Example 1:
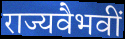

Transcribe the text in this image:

राज्यवैभवीं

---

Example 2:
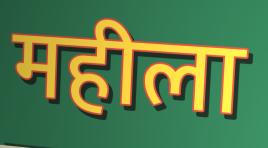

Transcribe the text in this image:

महीला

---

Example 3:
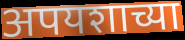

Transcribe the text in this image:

अपयशाच्या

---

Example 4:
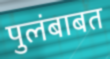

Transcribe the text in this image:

पुलंबाबत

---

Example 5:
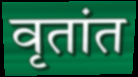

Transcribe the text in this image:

वृतांत